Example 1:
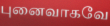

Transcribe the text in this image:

புனைவாகவே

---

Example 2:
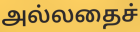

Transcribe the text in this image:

அல்லதைச்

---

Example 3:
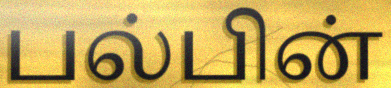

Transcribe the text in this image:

பல்பின்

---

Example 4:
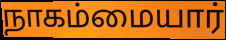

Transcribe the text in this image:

நாகம்மையார்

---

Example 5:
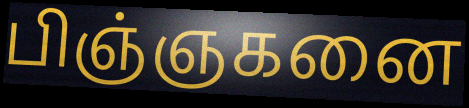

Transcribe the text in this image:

பிஞ்ஞகனை